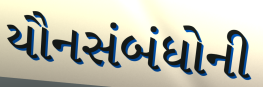
યૌનસંબંધોની